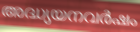
അദ്ധ്യയനവർഷം